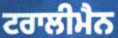
ਟਰਾਲੀਮੈਨ